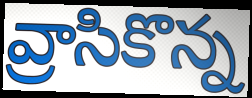
వ్రాసికొన్న